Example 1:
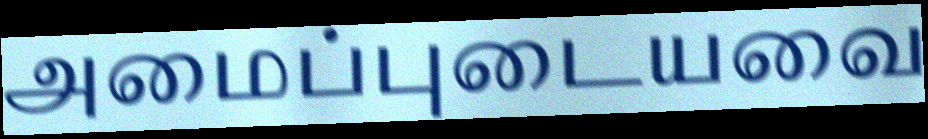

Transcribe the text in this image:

அமைப்புடையவை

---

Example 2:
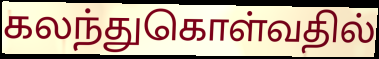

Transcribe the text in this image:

கலந்துகொள்வதில்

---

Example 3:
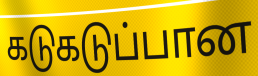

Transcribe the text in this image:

கடுகடுப்பான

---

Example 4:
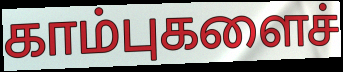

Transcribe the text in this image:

காம்புகளைச்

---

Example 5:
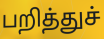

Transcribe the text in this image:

பறித்துச்